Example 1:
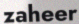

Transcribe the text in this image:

zaheer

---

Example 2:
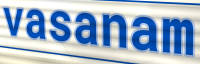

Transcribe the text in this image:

vasanam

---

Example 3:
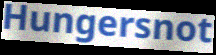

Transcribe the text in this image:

Hungersnot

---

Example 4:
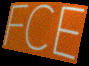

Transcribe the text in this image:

FCE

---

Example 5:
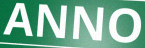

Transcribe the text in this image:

ANNO